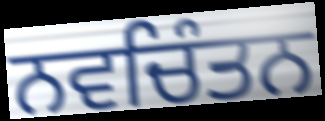
ਨਵਚਿੰਤਨ